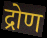
द्रोण